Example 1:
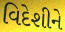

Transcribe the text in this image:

વિદેશીને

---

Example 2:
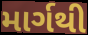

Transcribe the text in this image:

માર્ગથી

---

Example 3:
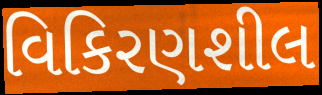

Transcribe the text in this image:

વિકિરણશીલ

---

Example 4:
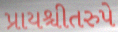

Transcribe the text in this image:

પ્રાયશ્ચીતરુપે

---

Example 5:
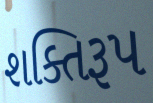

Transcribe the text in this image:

શક્તિરૂપ